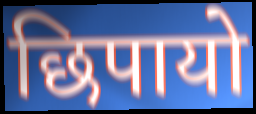
छिपायो